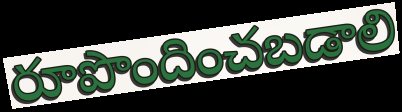
రూపొందించబడాలి